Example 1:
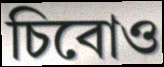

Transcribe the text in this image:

চিবোও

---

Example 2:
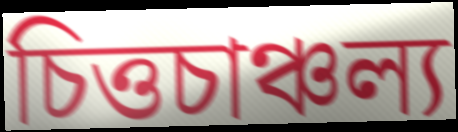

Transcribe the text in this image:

চিত্তচাঞ্চল্য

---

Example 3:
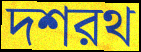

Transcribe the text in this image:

দশরথ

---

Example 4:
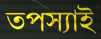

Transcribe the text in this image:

তপস্যাই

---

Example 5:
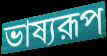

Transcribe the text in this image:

ভাষ্যরূপ